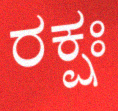
ರಕ್ಷಃ